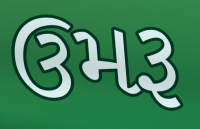
ઉમરૂ